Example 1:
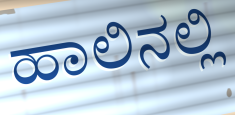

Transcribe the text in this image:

ಹಾಲಿನಲ್ಲಿ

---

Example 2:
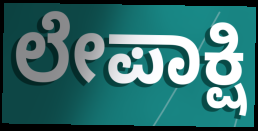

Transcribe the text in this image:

ಲೇಪಾಕ್ಷಿ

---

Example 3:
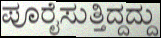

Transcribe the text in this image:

ಪೂರೈಸುತ್ತಿದ್ದದ್ದು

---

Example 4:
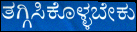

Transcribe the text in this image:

ತಗ್ಗಿಸಿಕೊಳ್ಳಬೇಕು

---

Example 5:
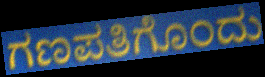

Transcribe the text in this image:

ಗಣಪತಿಗೊಂದು